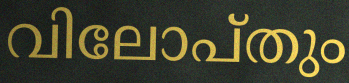
വിലോപ്തും